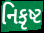
નિકૃષ્ટ